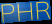
PHR